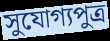
সুযোগ্যপুত্র